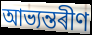
আভ্যন্তৰীণ